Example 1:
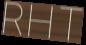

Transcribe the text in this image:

RHT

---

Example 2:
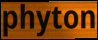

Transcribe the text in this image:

phyton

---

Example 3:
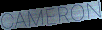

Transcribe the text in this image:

CAMERON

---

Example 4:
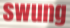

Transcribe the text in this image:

swung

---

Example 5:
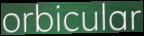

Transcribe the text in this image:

orbicular